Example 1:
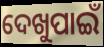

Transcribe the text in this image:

ଦେଖୁପାଇଁ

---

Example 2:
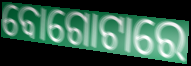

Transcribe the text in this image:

ବୋଗୋଟାରେ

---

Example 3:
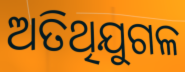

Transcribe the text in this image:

ଅତିଥିଯୁଗଳ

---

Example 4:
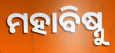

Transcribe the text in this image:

ମହାବିଷ୍ନୁ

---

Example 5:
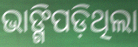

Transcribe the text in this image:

ଭାଙ୍ଗିପଡ଼ିଥିଲା